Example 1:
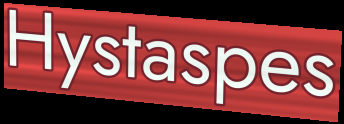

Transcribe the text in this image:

Hystaspes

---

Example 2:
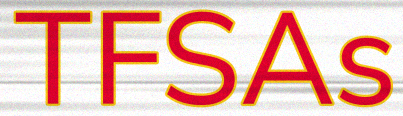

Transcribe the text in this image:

TFSAs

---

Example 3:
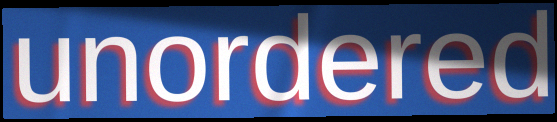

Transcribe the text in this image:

unordered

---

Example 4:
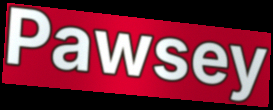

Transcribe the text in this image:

Pawsey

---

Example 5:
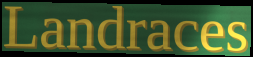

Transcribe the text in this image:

Landraces